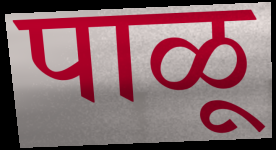
पाळू